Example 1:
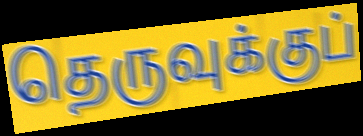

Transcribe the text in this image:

தெருவுக்குப்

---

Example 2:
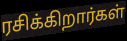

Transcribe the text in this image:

ரசிக்கிறார்கள்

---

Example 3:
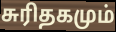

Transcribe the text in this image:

சுரிதகமும்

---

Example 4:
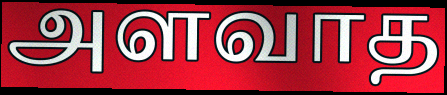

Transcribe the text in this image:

அளவாத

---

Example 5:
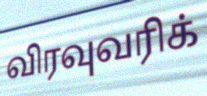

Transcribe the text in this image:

விரவுவரிக்